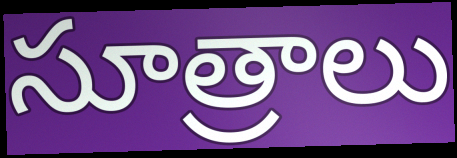
సూత్రాలు